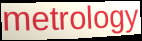
metrology